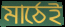
মাঠেই